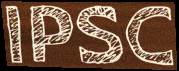
IPSC